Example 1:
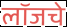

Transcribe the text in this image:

लॉजचे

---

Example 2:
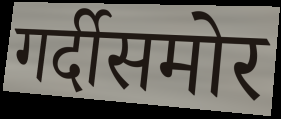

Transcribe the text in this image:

गर्दीसमोर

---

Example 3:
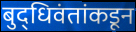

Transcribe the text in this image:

बुद्धिवंतांकडून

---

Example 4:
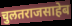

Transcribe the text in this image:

चुलतराजसाहेब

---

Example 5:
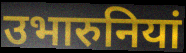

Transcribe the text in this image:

उभारुनियां